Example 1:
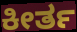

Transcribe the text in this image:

ಕೀರ್ತ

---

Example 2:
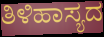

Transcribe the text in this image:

ತಿಳಿಹಾಸ್ಯದ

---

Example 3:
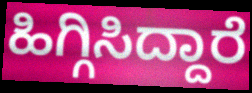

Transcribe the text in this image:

ಹಿಗ್ಗಿಸಿದ್ದಾರೆ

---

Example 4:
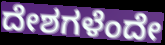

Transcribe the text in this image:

ದೇಶಗಳೆಂದೇ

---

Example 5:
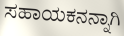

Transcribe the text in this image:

ಸಹಾಯಕನನ್ನಾಗಿ